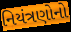
નિયંત્રણોનો